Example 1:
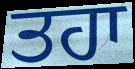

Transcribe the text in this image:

ਤਹਾ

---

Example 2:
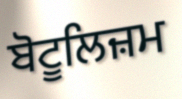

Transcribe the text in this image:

ਬੋਟੂਲਿਜ਼ਮ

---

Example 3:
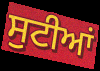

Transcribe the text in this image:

ਸੁਟੀਆਂ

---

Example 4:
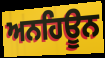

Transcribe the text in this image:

ਅਨਹਿਊਨ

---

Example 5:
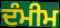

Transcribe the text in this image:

ਦੰਮੀਮ